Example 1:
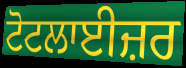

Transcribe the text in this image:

ਟੋਟਲਾਈਜ਼ਰ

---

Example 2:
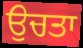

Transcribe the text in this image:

ਉਚਤਾ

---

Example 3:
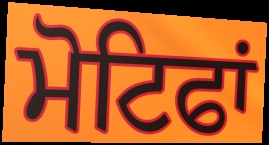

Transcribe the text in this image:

ਮੋਟਿਫਾਂ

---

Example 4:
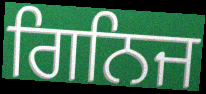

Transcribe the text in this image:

ਗਿਨਿਜ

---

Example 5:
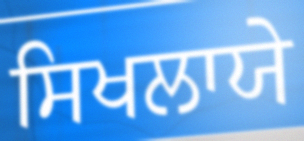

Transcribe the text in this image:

ਸਿਖਲਾਯੇ